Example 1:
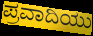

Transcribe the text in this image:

ಪ್ರವಾದಿಯು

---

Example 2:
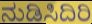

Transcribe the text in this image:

ನುಡಿಸಿದಿರಿ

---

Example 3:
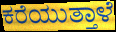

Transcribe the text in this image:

ಕರೆಯುತ್ತಾಳೆ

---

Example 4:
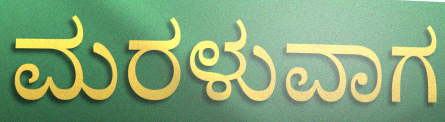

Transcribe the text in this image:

ಮರಳುವಾಗ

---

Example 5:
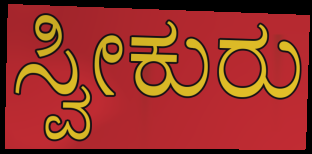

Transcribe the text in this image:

ಸ್ವೀಕುರು